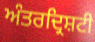
ਅੰਤਰਦ੍ਰਿਸ਼ਟੀ